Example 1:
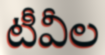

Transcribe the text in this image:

టీవీల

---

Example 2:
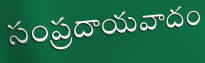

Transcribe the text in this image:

సంప్రదాయవాదం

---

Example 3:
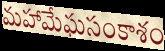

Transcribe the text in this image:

మహామేఘసంకాశం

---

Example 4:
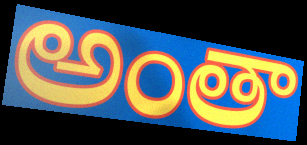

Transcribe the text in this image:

అంతా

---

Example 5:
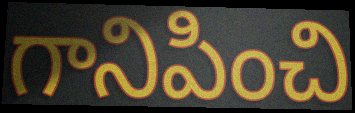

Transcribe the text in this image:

గానిపించి